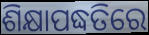
ଶିକ୍ଷାପଦ୍ଧତିରେ